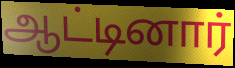
ஆட்டினார்